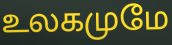
உலகமுமே